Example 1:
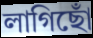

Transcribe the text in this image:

লাগিছোঁ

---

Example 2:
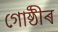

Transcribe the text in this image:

গোষ্ঠীৰ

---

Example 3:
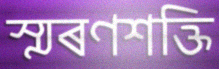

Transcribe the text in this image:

স্মৰণশক্তি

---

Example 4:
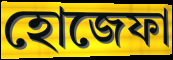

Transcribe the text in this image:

হোজেফা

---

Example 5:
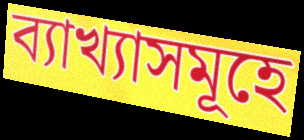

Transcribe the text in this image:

ব্যাখ্যাসমূহে